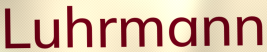
Luhrmann